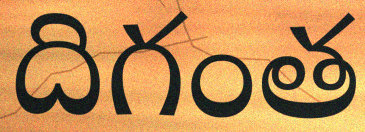
దిగంత